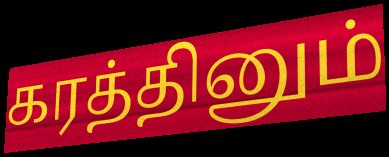
கரத்தினும்